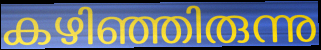
കഴിഞ്ഞിരുന്നു